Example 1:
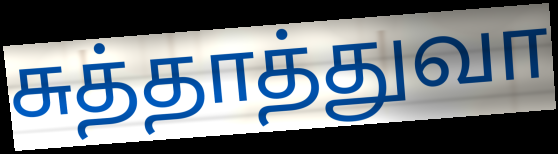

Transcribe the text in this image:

சுத்தாத்துவா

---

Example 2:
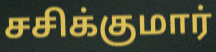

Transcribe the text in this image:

சசிக்குமார்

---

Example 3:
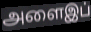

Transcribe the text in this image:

அளைஇப்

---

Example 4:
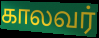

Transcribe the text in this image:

காலவர்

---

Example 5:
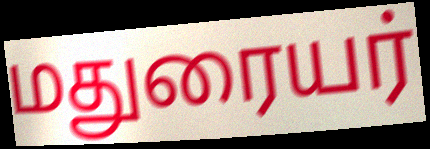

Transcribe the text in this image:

மதுரையர்